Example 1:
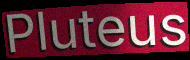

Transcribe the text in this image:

Pluteus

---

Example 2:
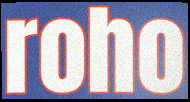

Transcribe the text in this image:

roho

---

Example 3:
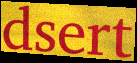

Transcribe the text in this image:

dsert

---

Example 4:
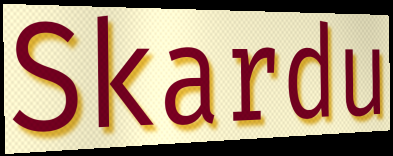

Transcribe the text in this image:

Skardu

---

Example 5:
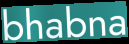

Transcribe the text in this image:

bhabna